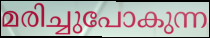
മരിച്ചുപോകുന്ന